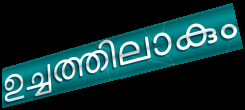
ഉച്ചത്തിലാകും